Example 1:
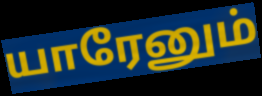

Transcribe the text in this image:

யாரேனும்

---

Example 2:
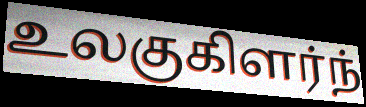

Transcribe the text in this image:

உலகுகிளர்ந்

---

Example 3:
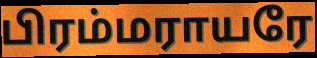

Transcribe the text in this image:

பிரம்மராயரே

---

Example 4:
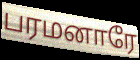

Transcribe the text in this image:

பரமனாரே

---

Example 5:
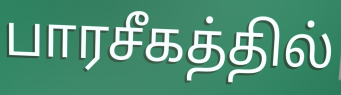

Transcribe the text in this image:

பாரசீகத்தில்